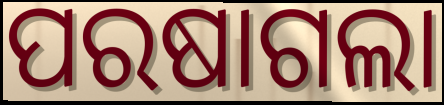
ପରଷାଗଲା